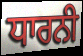
ਧਾਰਨੀ